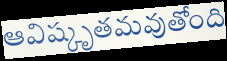
ఆవిష్కృతమవుతోంది